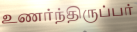
உணர்ந்திருப்பர்